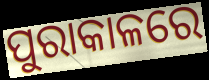
ପୁରାକାଳରେ